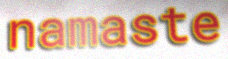
namaste